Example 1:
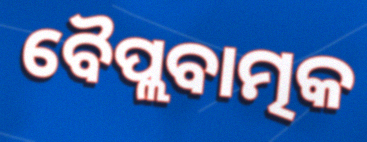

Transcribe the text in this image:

ବୈପ୍ଲବାତ୍ମକ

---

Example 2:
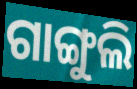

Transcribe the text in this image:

ଗାଙ୍ଗୁଲି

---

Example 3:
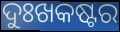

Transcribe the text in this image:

ଦୁଃଖକଷ୍ଟର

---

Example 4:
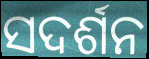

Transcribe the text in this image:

ସଦର୍ଶନ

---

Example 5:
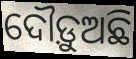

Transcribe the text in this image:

ଦୌଡ଼ୁଅଛି